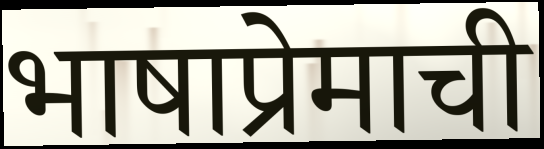
भाषाप्रेमाची